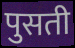
पुसती